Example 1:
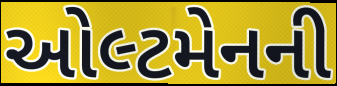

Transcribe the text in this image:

ઓલ્ટમેનની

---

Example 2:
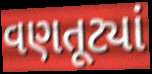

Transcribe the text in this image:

વણતૂટ્યાં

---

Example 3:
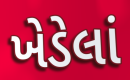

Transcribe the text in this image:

ખેડેલાં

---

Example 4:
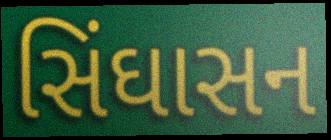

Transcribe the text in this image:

સિંઘાસન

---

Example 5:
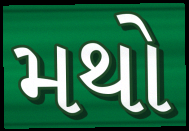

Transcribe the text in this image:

મથો